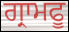
ਗ੍ਰਾਮਫੂ